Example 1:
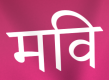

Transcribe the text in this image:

मवि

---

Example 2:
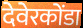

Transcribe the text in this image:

देवेरकोंडा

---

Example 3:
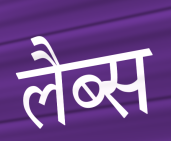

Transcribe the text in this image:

लैब्स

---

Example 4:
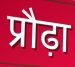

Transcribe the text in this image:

प्रौढ़ा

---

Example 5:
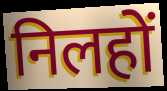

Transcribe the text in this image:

निलहों